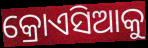
କ୍ରୋଏସିଆକୁ